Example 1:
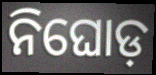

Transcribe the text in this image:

ନିଘୋଡ଼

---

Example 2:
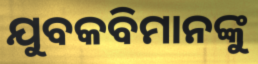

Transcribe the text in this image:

ଯୁବକବିମାନଙ୍କୁ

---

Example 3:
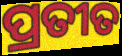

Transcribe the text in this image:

ପ୍ରତୀତ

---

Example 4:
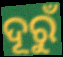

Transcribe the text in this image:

ଦୂରୁଁ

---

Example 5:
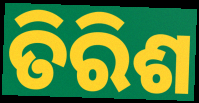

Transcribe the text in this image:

ତିରିଶ